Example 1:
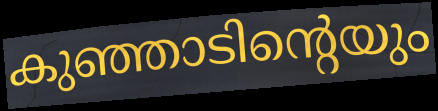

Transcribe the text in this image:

കുഞ്ഞാടിന്റെയും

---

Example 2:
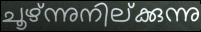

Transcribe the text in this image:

ചൂഴ്ന്നുനില്ക്കുന്നു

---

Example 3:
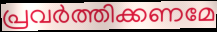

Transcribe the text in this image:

പ്രവർത്തിക്കണമേ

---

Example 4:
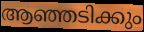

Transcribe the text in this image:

ആഞ്ഞടിക്കും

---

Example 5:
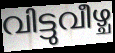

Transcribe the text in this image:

വിട്ടുവീഴ്ച